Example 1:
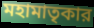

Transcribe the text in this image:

মহামাতৃকার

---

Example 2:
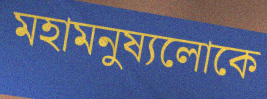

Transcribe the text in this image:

মহামনুষ্যলোকে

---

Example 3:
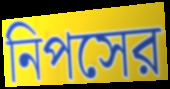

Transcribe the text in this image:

নিপসের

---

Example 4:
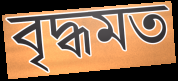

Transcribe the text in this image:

বৃদ্ধমত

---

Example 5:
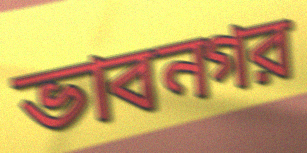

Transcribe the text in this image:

ভাবনগর